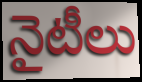
నైటీలు